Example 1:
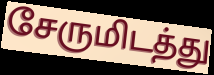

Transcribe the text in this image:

சேருமிடத்து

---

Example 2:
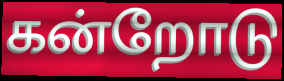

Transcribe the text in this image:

கன்றோடு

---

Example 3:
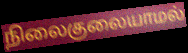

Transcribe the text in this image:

நிலைகுலையாமல்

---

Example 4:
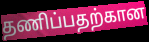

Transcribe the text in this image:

தணிப்பதற்கான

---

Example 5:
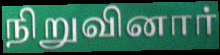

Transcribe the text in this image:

நிறுவினார்